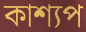
কাশ্যপ